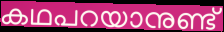
കഥപറയാനുണ്ട്